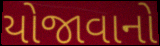
યોજાવાનો